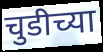
चुडीच्या